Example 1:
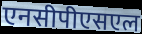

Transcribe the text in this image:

एनसीपीएसएल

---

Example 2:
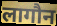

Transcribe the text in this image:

लागौन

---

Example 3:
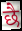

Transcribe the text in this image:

छै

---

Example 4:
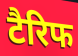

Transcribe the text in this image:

टैरिफ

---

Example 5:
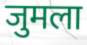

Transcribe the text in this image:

जुमला